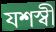
যশস্বী